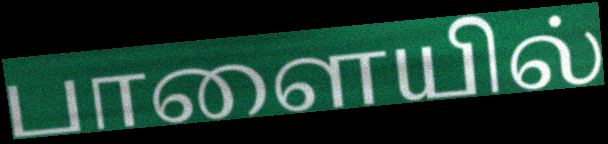
பாளையில்